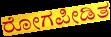
ರೋಗಪೀಡಿತ